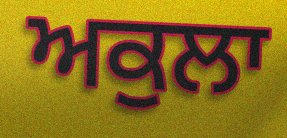
ਅਕੁਲਾ